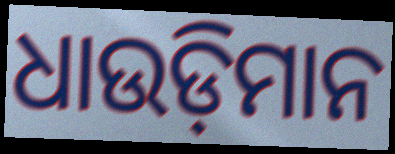
ଧାଉଡ଼ିମାନ